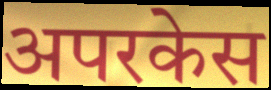
अपरकेस